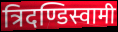
त्रिदण्डिस्वामी